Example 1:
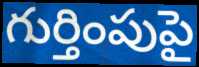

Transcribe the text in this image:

గుర్తింపుపై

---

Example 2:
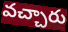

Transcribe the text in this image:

వచ్చారు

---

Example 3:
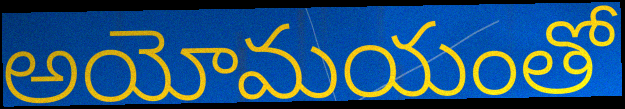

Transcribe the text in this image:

అయోమయంతో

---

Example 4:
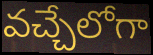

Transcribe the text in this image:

వచ్చేలోగా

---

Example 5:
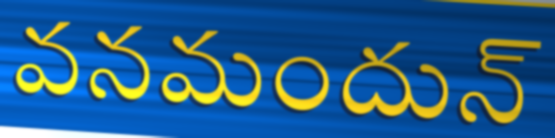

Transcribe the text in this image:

వనమందున్